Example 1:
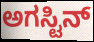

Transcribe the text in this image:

ಅಗಸ್ಟಿನ್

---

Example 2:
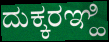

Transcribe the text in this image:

ದುಕ್ಕರಞ್ಹಿ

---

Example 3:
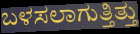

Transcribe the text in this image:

ಬಳಸಲಾಗುತ್ತಿತ್ತು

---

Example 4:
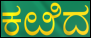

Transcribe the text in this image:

ಕೞಿದ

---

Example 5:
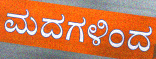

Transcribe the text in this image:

ಮದಗಳಿಂದ